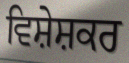
ਵਿਸ਼ੇਸ਼ਕਰ